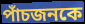
পাঁচজনকে